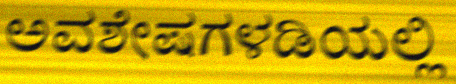
ಅವಶೇಷಗಳಡಿಯಲ್ಲಿ